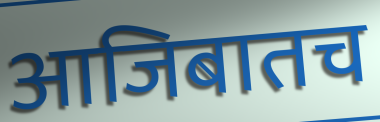
आजिबातच